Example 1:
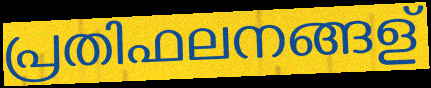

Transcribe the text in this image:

പ്രതിഫലനങ്ങള്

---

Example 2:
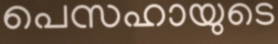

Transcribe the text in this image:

പെസഹായുടെ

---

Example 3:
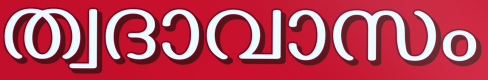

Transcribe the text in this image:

ത്വദാവാസം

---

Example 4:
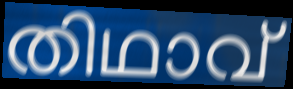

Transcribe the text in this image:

തിഥാവ്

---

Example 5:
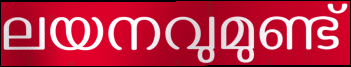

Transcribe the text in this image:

ലയനവുമുണ്ട്